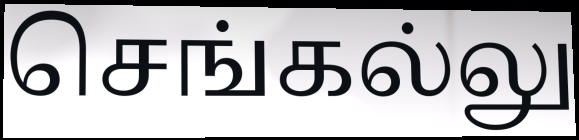
செங்கல்லு